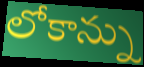
లోకాన్ను